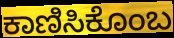
ಕಾಣಿಸಿಕೊಂಬ